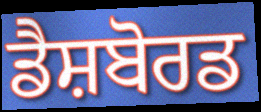
ਡੈਸ਼ਬੋਰਡ